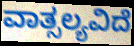
ವಾತ್ಸಲ್ಯವಿದೆ